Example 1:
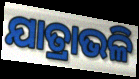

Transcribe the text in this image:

ଯାତ୍ରାଭଳି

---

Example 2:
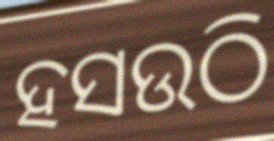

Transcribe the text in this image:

ହସଉଠି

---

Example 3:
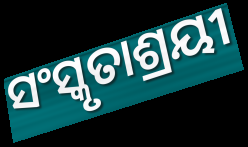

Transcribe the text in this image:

ସଂସ୍କୃତାଶ୍ରୟୀ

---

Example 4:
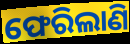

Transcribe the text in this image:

ଫେରିଲାଣି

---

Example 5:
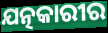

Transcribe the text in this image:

ଯତ୍ନକାରୀର